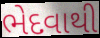
ભેદવાથી